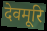
देवमूरि